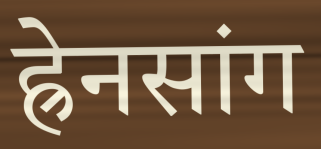
ह्रेनसांग